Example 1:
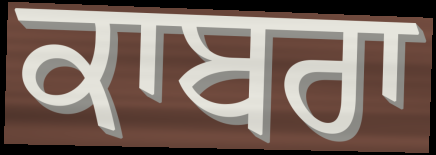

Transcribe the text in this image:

ਕਾਬਰਾ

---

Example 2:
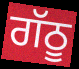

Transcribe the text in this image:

ਗੱਠੂ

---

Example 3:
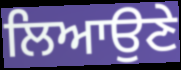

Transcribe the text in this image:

ਲਿਆਉਣੇ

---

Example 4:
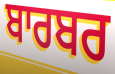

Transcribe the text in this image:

ਬਾਰਬਰ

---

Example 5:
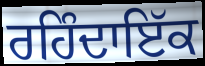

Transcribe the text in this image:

ਰਹਿੰਦਾਇੱਕ